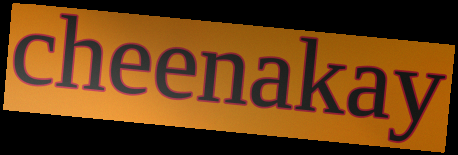
cheenakay